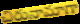
చిరునామాగా